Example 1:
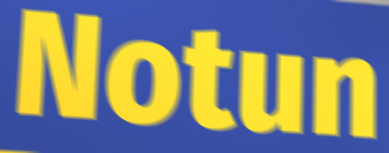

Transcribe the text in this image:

Notun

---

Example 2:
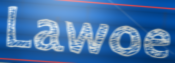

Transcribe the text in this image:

Lawoe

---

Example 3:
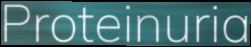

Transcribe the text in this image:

Proteinuria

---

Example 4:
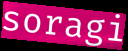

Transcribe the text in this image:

soragi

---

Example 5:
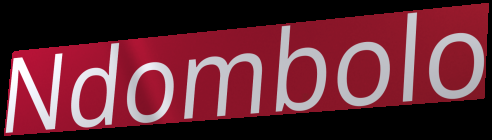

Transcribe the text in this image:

Ndombolo